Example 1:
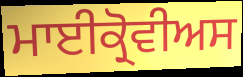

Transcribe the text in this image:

ਮਾਈਕ੍ਰੋਵੀਅਸ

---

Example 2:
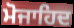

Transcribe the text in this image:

ਮੋਜਾਹਿਦ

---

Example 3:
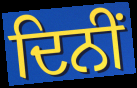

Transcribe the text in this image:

ਦਿਨੀਂ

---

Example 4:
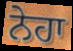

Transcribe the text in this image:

ਨੇਹਾ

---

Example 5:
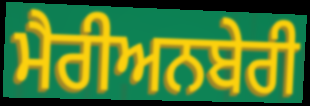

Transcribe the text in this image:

ਮੈਰੀਅਨਬੇਰੀ